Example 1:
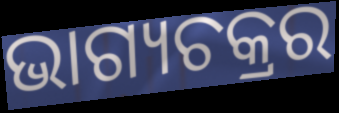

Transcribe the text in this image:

ଭାଗ୍ୟଚକ୍ରର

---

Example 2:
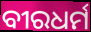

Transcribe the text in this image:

ବୀରଧର୍ମ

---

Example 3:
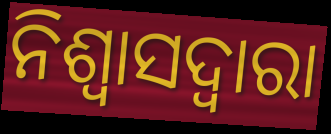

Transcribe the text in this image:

ନିଶ୍ୱାସଦ୍ୱାରା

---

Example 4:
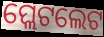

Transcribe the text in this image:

ପ୍ଲେଟଲେଟ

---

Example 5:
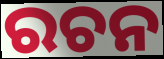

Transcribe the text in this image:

ରଚନ